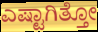
ಎಷ್ಟಾಗಿತ್ತೋ